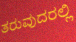
ತರುವುದರಲ್ಲಿ